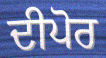
ਦੀਪੋਰ